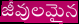
జీవులమైన